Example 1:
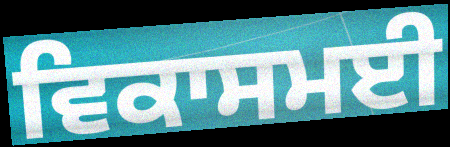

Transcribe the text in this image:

ਵਿਕਾਸਮਈ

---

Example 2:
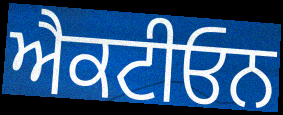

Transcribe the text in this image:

ਐਕਟੀਓਨ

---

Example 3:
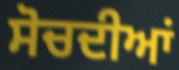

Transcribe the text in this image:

ਸੋਚਦੀਆਂ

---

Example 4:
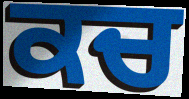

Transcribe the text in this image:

ਕਚ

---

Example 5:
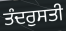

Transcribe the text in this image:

ਤੰਦਰੁਸਤੀ